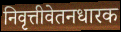
निवृत्तीवेतनधारक